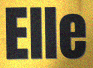
Elle